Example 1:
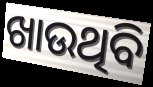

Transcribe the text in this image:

ଖାଉଥିବି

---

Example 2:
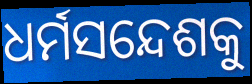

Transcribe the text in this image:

ଧର୍ମସନ୍ଦେଶକୁ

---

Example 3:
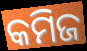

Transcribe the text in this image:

କମିଜ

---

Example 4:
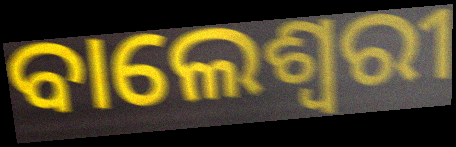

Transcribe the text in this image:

ବାଲେଶ୍ୱରୀ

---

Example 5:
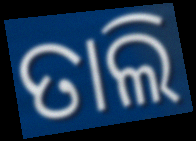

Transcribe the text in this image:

ତାଲି